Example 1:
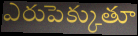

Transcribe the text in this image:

ఎరుపెక్కుతూ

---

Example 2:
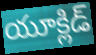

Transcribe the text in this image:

యూక్లిడ్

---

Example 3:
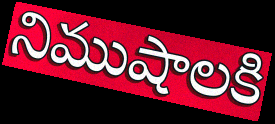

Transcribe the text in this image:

నిముషాలకి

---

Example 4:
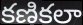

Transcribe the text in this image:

కణికలా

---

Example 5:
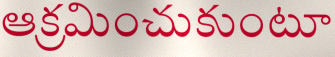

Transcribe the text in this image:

ఆక్రమించుకుంటూ